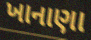
ખાનાણા